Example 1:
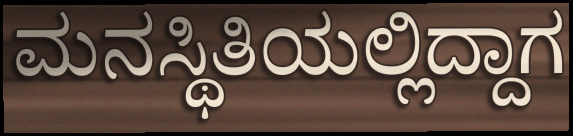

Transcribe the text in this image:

ಮನಸ್ಥಿತಿಯಲ್ಲಿದ್ದಾಗ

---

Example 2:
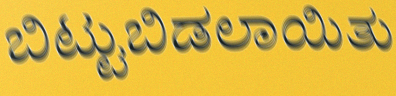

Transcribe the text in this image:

ಬಿಟ್ಟುಬಿಡಲಾಯಿತು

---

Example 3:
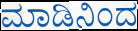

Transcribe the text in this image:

ಮಾಡಿನಿಂದ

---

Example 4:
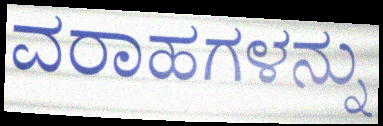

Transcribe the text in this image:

ವರಾಹಗಳನ್ನು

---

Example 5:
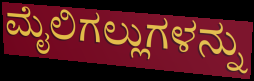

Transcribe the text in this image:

ಮೈಲಿಗಲ್ಲುಗಳನ್ನು